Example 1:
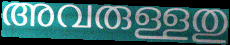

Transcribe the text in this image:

അവരുള്ളതു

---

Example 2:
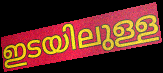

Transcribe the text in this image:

ഇടയിലുള്ള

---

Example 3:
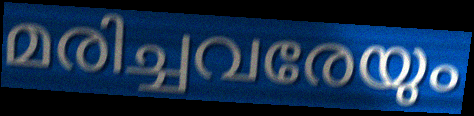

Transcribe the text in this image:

മരിച്ചവരേയും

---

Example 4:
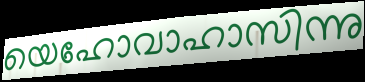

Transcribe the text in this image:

യെഹോവാഹാസിന്നു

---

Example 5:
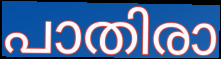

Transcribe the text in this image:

പാതിരാ